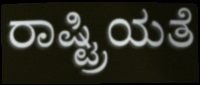
ರಾಷ್ಟ್ರಿಯತೆ